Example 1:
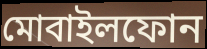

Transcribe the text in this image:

মোবাইলফোন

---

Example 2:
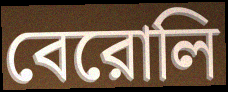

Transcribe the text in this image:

বেরোলি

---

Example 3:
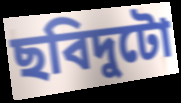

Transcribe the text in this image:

ছবিদুটো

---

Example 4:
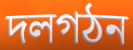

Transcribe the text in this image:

দলগঠন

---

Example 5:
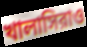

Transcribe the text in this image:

খালাসিরাও